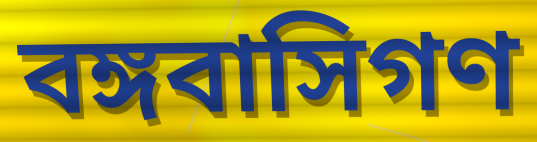
বঙ্গবাসিগণ